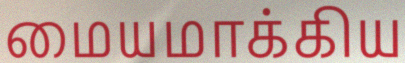
மையமாக்கிய